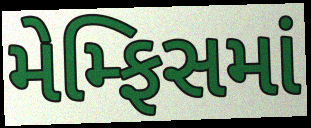
મેમ્ફિસમાં